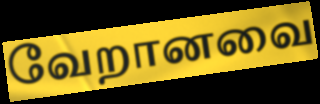
வேறானவை